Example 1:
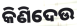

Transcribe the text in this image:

କିଣିଦେଉ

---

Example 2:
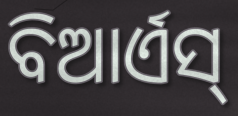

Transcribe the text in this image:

ବିଆର୍ଏସ୍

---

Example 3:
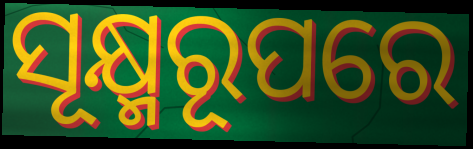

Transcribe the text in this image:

ସୂକ୍ଷ୍ମରୂପରେ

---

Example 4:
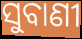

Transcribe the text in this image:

ସୁବାଣୀ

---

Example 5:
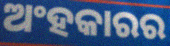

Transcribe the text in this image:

ଅଂହକାରର